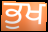
ਭੁਖ